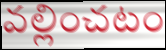
వల్లించటం